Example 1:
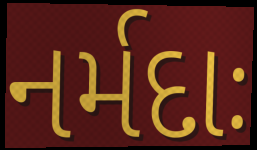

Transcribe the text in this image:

નર્મદાઃ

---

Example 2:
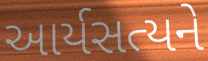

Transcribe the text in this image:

આર્યસત્યને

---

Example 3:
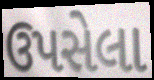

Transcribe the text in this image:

ઉપસેલા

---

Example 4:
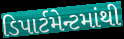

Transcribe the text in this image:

ડિપાર્ટમેન્ટમાંથી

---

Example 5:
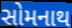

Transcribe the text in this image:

સોમનાથ